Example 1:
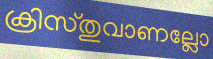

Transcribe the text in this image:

ക്രിസ്തുവാണല്ലോ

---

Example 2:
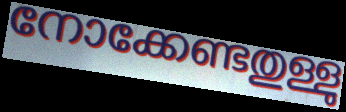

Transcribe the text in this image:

നോക്കേണ്ടതുള്ളു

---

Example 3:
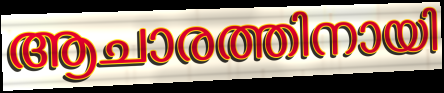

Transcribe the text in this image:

ആചാരത്തിനായി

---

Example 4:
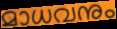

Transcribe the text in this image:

മാധവനും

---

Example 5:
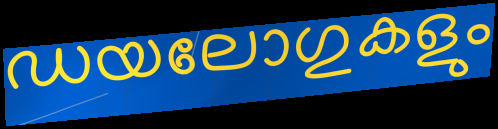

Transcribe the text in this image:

ഡയലോഗുകളും